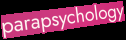
parapsychology